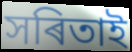
সৰিতাই